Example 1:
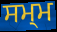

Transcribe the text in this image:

ਸਮ੍ਮ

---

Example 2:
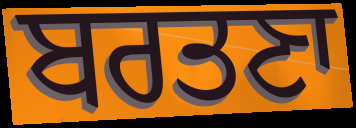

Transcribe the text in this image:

ਬਰਤਣਾ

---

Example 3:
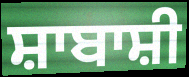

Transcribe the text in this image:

ਸ਼ਾਬਾਸ਼ੀ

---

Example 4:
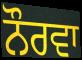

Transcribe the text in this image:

ਨੌਰਵਾ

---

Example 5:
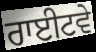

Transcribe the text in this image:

ਰਾਈਟਵੇ